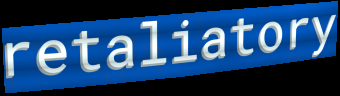
retaliatory